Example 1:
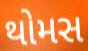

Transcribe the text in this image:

થોમસ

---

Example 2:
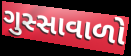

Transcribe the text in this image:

ગુસ્સાવાળો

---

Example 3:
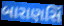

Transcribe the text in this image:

બારાણસિં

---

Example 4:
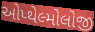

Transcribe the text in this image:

ઓપ્થેલ્મોલોજી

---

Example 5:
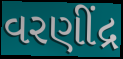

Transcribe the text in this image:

વરણીંદ્ર